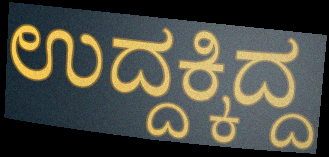
ಉದ್ದಕ್ಕಿದ್ದ